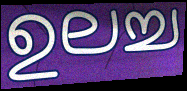
ഉലച്ച